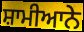
ਸ਼ਾਮੀਆਨੇ